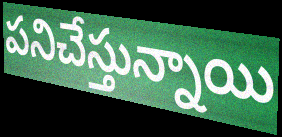
పనిచేస్తున్నాయి